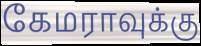
கேமராவுக்கு